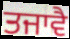
ਤਜਾਵੈ